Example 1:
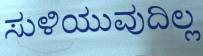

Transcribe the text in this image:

ಸುಳಿಯುವುದಿಲ್ಲ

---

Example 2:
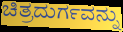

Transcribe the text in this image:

ಚಿತ್ರದುರ್ಗವನ್ನು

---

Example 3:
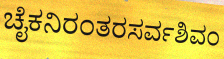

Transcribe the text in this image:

ಚೈಕನಿರಂತರಸರ್ವಶಿವಂ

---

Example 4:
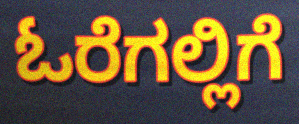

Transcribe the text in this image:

ಓರೆಗಲ್ಲಿಗೆ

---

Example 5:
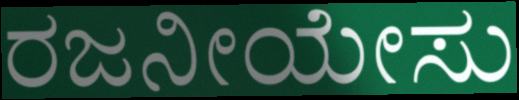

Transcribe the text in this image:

ರಜನೀಯೇಸು